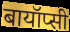
बायॉप्सी